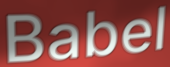
Babel